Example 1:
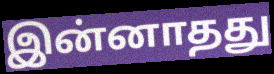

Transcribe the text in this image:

இன்னாதது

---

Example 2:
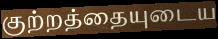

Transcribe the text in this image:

குற்றத்தையுடைய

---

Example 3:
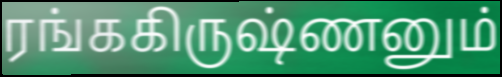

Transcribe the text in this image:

ரங்ககிருஷ்ணனும்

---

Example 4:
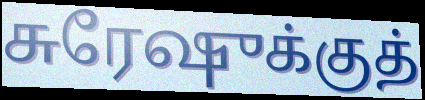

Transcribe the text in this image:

சுரேஷுக்குத்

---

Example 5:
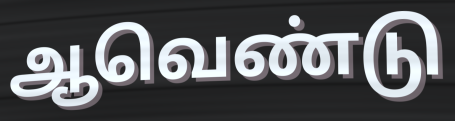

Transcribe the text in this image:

ஆவெண்டு